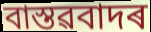
বাস্তৱবাদৰ